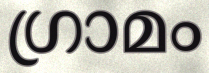
ഗ്രാമം